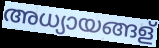
അധ്യായങ്ങള്